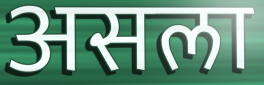
असला